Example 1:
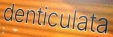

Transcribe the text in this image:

denticulata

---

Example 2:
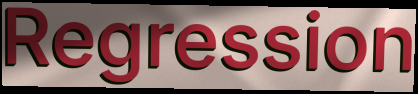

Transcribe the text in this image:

Regression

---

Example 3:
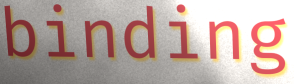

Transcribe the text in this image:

binding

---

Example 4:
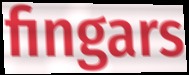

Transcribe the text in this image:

fingars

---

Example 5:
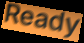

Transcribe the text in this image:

Ready